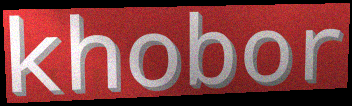
khobor